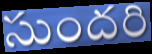
సుందరి